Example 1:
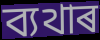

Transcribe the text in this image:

ব্যথাৰ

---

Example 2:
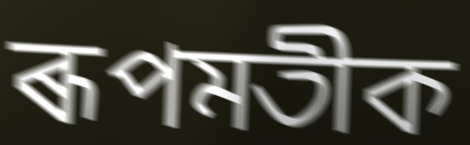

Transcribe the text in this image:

ৰূপমতীক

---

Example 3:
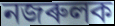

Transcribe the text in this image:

নজৰুলক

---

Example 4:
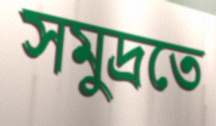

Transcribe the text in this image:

সমুদ্ৰতে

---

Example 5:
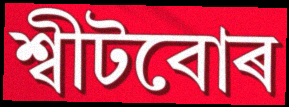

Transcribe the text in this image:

শ্বীটবোৰ